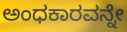
ಅಂಧಕಾರವನ್ನೇ